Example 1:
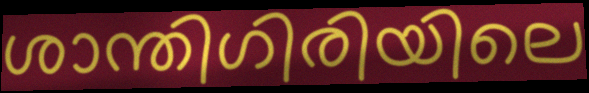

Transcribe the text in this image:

ശാന്തിഗിരിയിലെ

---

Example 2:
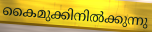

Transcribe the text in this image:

കൈമുക്കിനിൽക്കുന്നു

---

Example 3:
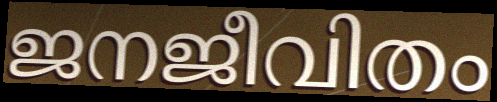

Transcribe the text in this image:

ജനജീവിതം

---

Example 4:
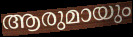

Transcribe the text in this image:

ആരുമായും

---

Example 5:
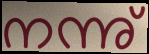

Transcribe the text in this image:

നന്നു്